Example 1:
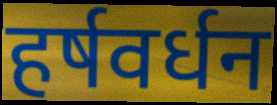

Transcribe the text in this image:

हर्षवर्धन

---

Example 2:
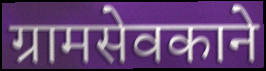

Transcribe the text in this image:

ग्रामसेवकाने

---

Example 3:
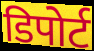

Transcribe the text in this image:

डिपोर्ट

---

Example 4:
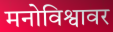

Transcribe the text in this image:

मनोविश्वावर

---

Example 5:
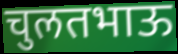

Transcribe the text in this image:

चुलतभाऊ